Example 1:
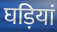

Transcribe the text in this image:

घड़ियां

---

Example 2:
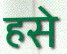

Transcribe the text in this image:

हसे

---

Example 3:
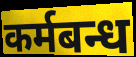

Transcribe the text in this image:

कर्मबन्ध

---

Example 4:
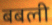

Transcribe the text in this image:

बबली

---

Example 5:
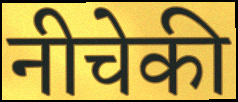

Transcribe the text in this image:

नीचेकी